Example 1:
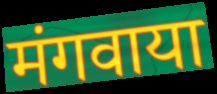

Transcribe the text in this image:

मंगवाया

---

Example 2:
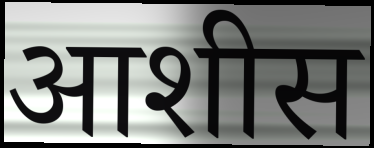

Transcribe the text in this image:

आशीस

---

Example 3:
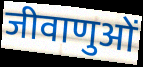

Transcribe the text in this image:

जीवाणुओं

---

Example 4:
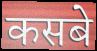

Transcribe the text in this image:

कसबे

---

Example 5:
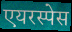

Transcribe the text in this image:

एयरस्पेस